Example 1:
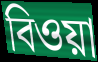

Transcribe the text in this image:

বিওয়া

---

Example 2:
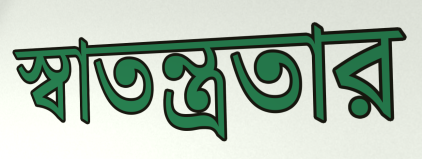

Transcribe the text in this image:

স্বাতন্ত্রতার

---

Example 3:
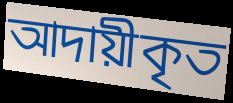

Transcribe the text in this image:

আদায়ীকৃত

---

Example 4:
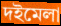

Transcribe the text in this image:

দইমেলা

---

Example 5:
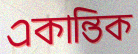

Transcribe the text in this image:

একান্তিক